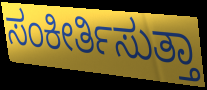
ಸಂಕೀರ್ತಿಸುತ್ತಾ